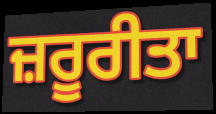
ਜ਼ਰੂਰੀਤਾ